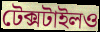
টেক্সটাইলও